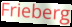
Frieberg